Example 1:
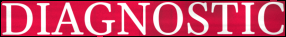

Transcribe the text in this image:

DIAGNOSTIC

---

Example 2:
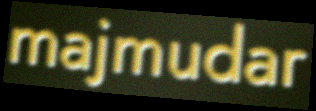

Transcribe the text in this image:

majmudar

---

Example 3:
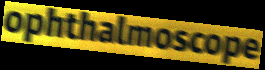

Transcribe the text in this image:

ophthalmoscope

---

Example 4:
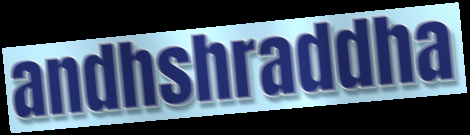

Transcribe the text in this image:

andhshraddha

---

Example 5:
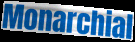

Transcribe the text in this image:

Monarchial